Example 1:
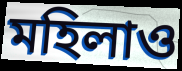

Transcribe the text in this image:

মহিলাও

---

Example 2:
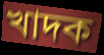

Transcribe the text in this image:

খাদক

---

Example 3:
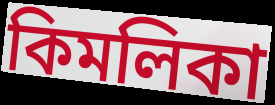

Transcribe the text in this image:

কিমলিকা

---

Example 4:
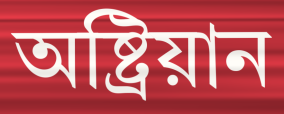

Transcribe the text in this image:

অষ্ট্ৰিয়ান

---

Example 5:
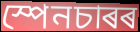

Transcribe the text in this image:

স্পেনচাৰৰ